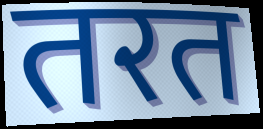
तरत